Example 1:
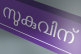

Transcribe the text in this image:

സുകുവിന്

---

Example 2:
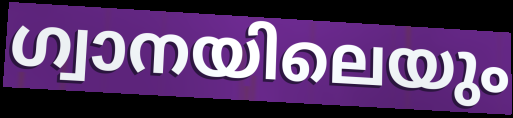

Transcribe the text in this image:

ഗ്വാനയിലെയും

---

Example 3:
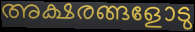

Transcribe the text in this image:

അക്ഷരങ്ങളോടു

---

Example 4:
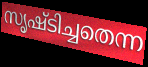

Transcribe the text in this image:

സൃഷ്ടിച്ചതെന്ന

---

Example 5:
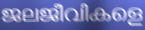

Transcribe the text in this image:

ജലജീവികളെ